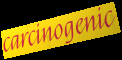
carcinogenic